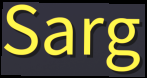
Sarg